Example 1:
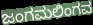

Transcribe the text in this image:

ಜಂಗಮಲಿಂಗವ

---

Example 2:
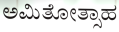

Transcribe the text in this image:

ಅಮಿತೋತ್ಸಾಹ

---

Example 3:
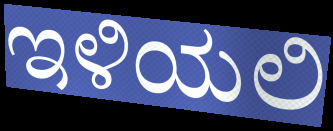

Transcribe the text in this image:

ಇಳಿಯಲಿ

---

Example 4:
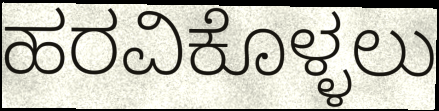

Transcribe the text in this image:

ಹರವಿಕೊಳ್ಳಲು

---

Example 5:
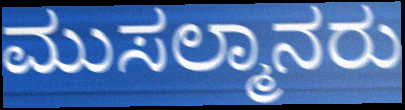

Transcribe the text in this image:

ಮುಸಲ್ಮಾನರು